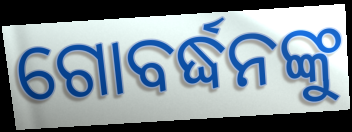
ଗୋବର୍ଦ୍ଧନଙ୍କୁ